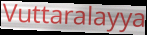
Vuttaralayya